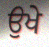
ਉਖੇ